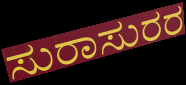
ಸುರಾಸುರರ